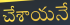
చేశాయనే